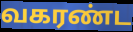
வகரண்ட